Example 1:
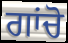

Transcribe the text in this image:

ਗਾਂਚੋ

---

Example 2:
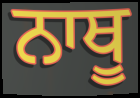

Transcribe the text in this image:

ਨਾਥੂ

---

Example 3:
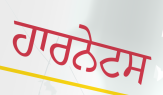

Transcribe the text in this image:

ਹਾਰਨੇਟਸ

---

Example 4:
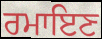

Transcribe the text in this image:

ਰਮਾਇਣ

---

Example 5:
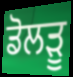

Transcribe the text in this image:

ਡੋਲੜੂ